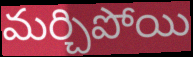
మర్చిపోయి